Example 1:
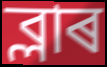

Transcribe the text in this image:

ব্লাৰ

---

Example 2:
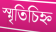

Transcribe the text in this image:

স্মৃতিচিহ্ন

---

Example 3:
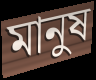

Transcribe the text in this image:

মানুষ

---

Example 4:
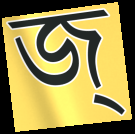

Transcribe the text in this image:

জ্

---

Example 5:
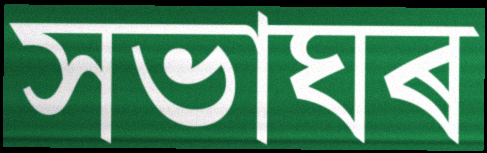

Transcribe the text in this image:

সভাঘৰ